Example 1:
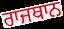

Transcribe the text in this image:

ਰਾਜਥਾਨ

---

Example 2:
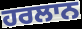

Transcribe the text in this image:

ਹਰਲਾਨ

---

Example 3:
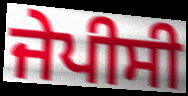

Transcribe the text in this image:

ਜੇਪੀਸੀ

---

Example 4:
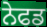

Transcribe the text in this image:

ਨੇਫਡ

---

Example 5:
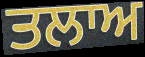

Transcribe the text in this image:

ਤਲਾਅ